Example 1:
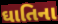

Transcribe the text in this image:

ઘાતિના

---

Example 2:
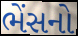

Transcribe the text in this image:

ભેંસનો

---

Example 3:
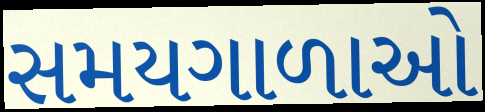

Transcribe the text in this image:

સમયગાળાઓ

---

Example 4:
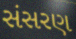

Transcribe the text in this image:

સંસરણ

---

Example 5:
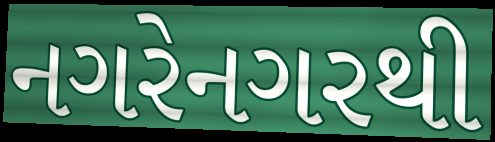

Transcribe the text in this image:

નગરેનગરથી